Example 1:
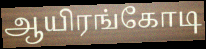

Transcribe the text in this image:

ஆயிரங்கோடி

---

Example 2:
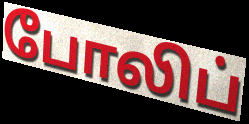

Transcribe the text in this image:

போலிப்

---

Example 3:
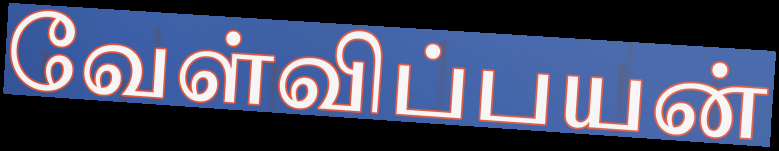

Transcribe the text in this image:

வேள்விப்பயன்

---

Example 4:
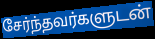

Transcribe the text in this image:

சேர்ந்தவர்களுடன்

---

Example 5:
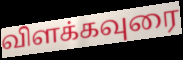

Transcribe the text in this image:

விளக்கவுரை